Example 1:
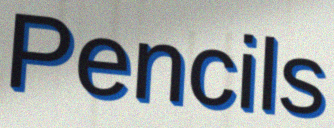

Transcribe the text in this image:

Pencils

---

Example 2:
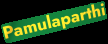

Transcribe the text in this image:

Pamulaparthi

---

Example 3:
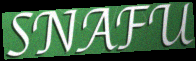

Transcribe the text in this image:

SNAFU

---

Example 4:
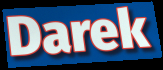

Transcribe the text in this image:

Darek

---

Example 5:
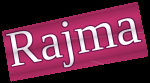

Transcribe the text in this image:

Rajma